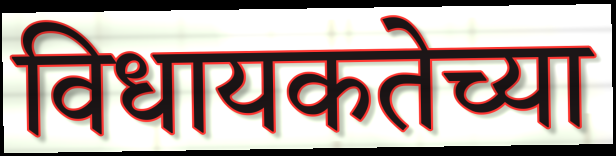
विधायकतेच्या